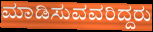
ಮಾಡಿಸುವವರಿದ್ದರು